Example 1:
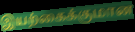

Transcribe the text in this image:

இயற்கைக்குமான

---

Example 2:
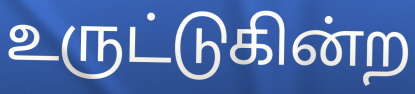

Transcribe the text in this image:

உருட்டுகின்ற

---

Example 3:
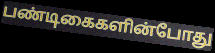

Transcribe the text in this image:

பண்டிகைகளின்போது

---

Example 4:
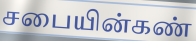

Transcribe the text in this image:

சபையின்கண்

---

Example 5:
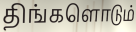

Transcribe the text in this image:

திங்களொடும்